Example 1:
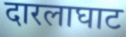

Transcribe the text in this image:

दारलाघाट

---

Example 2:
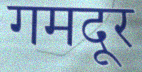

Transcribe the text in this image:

गमदूर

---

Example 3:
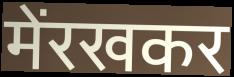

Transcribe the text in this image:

मेंरखकर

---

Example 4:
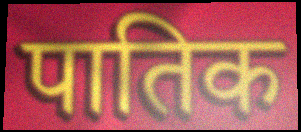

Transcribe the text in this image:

पातिक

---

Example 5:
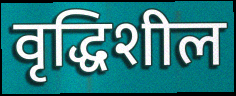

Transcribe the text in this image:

वृद्धिशील